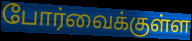
போர்வைக்குள்ள